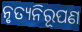
ନୃତ୍ୟନିରୂପଣ